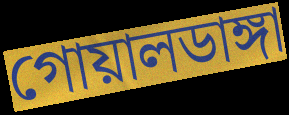
গোয়ালডাঙ্গা